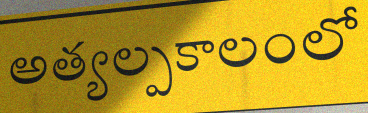
అత్యల్పకాలంలో